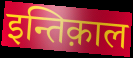
इन्तिक़ाल